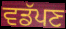
ਵਡੱਪਣ